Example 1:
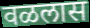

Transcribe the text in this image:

वळलास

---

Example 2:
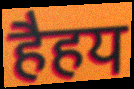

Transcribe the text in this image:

हैहय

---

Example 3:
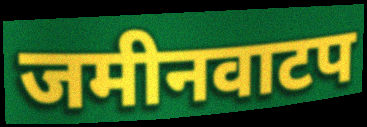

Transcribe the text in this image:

जमीनवाटप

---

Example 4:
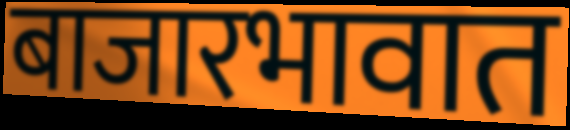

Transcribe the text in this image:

बाजारभावात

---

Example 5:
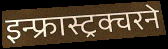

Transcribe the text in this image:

इन्फ्रास्ट्रक्चरने